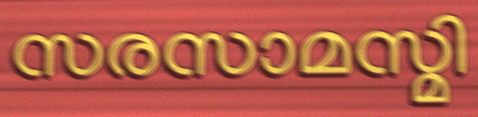
സരസാമസ്മി